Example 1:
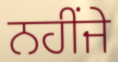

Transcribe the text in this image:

ਨਹੀਂਜੇ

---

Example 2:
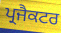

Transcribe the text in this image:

ਪ੍ਰਜੈਕਟਰ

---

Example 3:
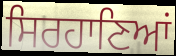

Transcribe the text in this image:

ਸਿਰਹਾਣਿਆਂ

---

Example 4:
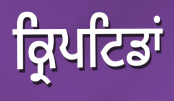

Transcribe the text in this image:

ਕ੍ਰਿਪਟਿਡਾਂ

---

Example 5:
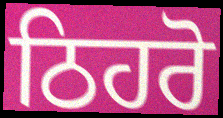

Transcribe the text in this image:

ਠਿਹਰੋ